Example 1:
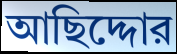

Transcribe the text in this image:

আছিদ্দোর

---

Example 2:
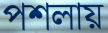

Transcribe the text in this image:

পশলায়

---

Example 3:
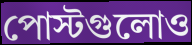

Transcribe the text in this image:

পোস্টগুলোও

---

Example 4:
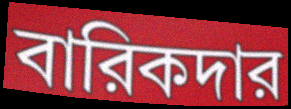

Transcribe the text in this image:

বারিকদার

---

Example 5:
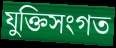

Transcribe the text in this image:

যুক্তিসংগত